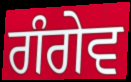
ਗੰਗੇਵ